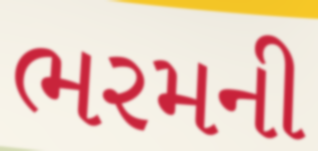
ભરમની